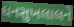
ધનસુખલાલને